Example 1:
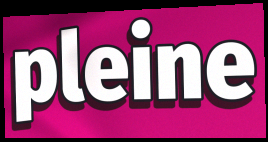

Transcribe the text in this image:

pleine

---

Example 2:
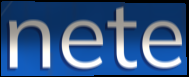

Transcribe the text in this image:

nete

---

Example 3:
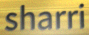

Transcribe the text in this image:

sharri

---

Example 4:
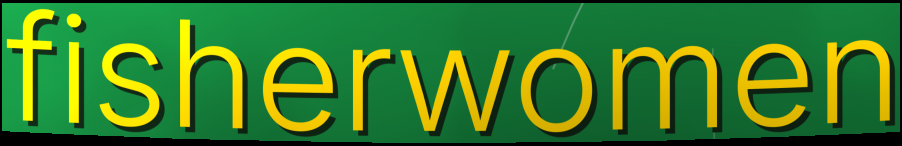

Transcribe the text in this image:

fisherwomen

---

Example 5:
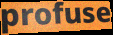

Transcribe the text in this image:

profuse